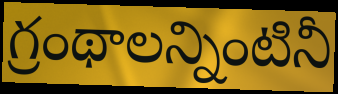
గ్రంథాలన్నింటినీ